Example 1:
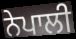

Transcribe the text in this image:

ਨੇਪਾਲੀ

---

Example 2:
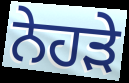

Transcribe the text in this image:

ਨੇਹੜੇ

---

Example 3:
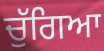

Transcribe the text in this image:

ਚੁੱਗਿਆ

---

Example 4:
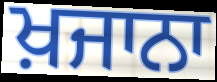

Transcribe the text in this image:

ਖ਼ਜਾਨਾ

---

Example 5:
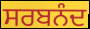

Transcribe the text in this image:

ਸਰਬਨੰਦ